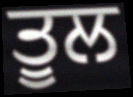
ਤੂਲ